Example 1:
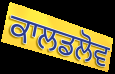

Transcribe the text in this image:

ਕਾਲਡਲੋਵ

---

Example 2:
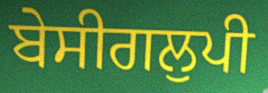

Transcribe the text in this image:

ਬੇਸੀਗਲੁਪੀ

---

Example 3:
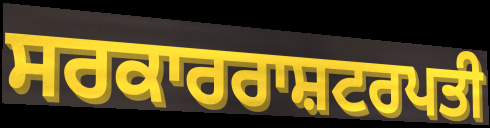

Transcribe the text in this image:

ਸਰਕਾਰਰਾਸ਼ਟਰਪਤੀ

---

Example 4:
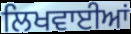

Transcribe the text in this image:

ਲਿਖਵਾਈਆਂ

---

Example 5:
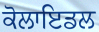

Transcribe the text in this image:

ਕੋਲਾਇਡਲ